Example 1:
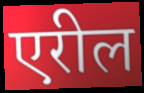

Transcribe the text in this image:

एरील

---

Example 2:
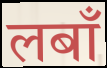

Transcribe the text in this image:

लबाँ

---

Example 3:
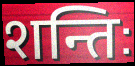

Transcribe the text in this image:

शन्तिः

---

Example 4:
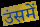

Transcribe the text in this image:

उंसमें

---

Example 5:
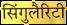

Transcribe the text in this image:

सिंगुलैरिटी